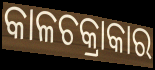
କାଳଚକ୍ରାକାର